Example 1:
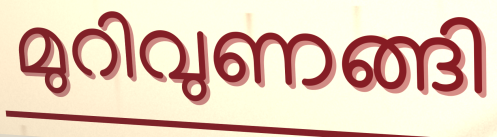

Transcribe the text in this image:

മുറിവുണങ്ങി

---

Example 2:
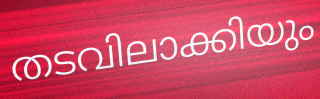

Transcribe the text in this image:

തടവിലാക്കിയും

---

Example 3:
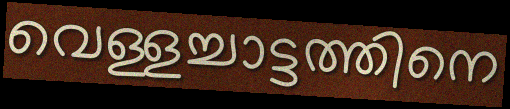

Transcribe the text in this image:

വെള്ളച്ചാട്ടത്തിനെ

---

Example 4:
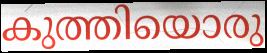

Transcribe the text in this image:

കുത്തിയൊരു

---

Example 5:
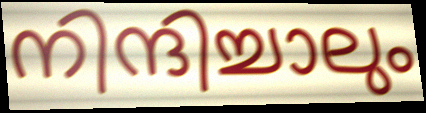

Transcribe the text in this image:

നിന്ദിച്ചാലും